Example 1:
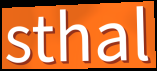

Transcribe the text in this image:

sthal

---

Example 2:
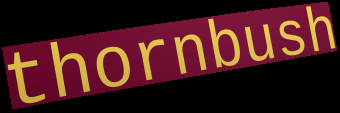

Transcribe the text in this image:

thornbush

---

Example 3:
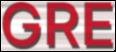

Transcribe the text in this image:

GRE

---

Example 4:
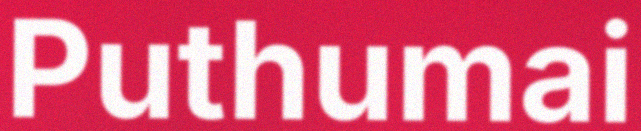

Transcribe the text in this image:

Puthumai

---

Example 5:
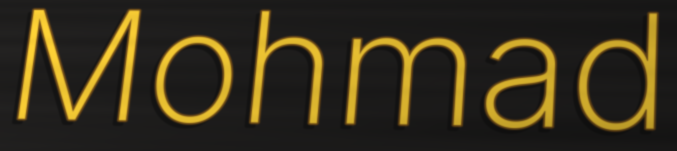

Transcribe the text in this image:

Mohmad